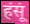
हंसूं